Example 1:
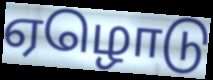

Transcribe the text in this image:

ஏழொடு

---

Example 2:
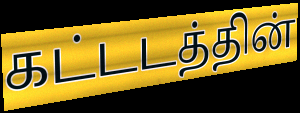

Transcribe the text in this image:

கட்டடத்தின்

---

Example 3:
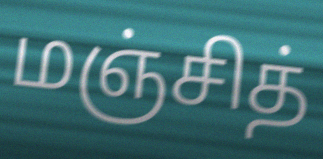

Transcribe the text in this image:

மஞ்சித்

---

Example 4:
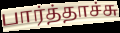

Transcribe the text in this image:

பார்த்தாச்சு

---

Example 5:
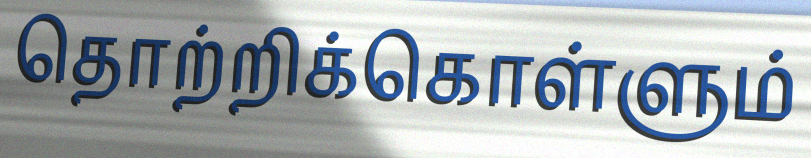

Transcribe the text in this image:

தொற்றிக்கொள்ளும்